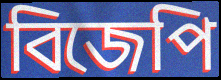
বিজেপি